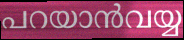
പറയാൻവയ്യ